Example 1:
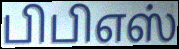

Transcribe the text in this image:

பிபிஎஸ்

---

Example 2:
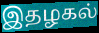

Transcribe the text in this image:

இதழகல்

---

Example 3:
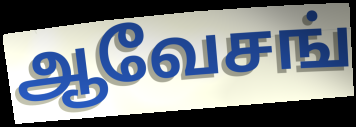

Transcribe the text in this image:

ஆவேசங்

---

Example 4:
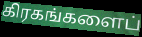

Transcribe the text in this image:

கிரகங்களைப்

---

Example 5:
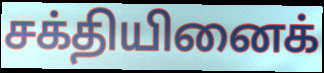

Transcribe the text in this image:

சக்தியினைக்